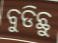
ବୁଡିଛୁ